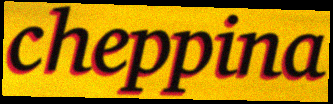
cheppina